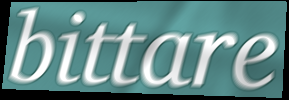
bittare